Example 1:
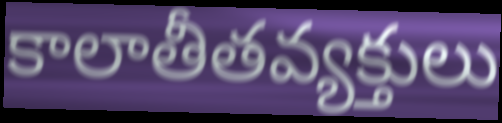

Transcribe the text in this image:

కాలాతీతవ్యక్తులు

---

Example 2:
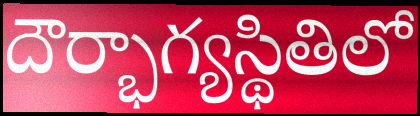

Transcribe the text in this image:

దౌర్భాగ్యస్థితిలో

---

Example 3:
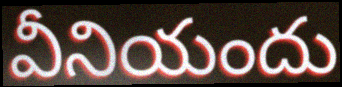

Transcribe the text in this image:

వీనియందు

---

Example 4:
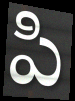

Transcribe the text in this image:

పి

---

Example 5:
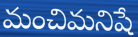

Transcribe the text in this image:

మంచిమనిషే